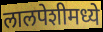
लालपेशीमध्ये